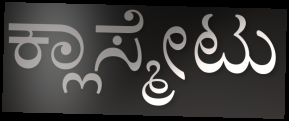
ಕ್ಲಾಸ್ಮೇಟು